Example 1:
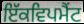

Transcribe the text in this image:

ਇੱਕਵਿਪਮੈਂਟ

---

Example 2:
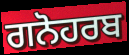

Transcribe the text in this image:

ਗਨੋਹਰਬ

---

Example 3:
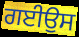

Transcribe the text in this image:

ਗਈਉਸ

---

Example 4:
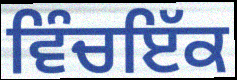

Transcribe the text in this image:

ਵਿੰਚਇੱਕ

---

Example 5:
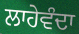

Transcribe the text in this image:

ਲਾਹੇਵੰਦਾ